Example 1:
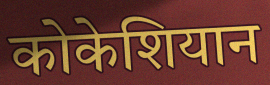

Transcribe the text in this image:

कोकेशियान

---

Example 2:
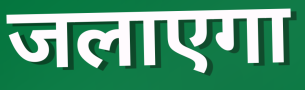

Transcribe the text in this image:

जलाएगा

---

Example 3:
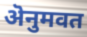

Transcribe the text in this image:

ऄनुमवत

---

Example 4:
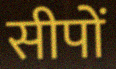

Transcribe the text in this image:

सीपों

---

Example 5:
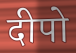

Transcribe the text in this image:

दीपो